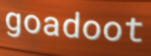
goadoot